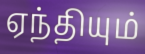
ஏந்தியும்